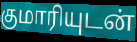
குமாரியுடன்